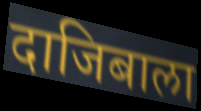
दाजिबाला